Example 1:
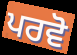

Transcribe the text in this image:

ਪਰਵੋ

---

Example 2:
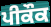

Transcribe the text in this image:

ਪੀਕੌਕ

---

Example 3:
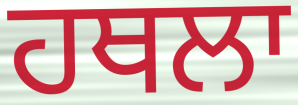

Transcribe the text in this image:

ਹਥਲਾ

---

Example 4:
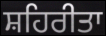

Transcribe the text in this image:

ਸ਼ਹਿਰੀਤਾ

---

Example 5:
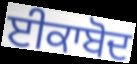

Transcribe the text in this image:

ਈਕਾਬੋਦ